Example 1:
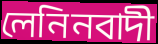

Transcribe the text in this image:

লেনিনবাদী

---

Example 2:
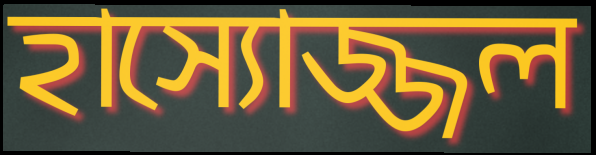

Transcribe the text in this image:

হাস্যোজ্জল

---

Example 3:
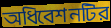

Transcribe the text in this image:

অধিবেশনটির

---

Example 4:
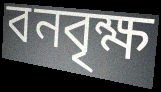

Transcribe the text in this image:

বনবৃক্ষ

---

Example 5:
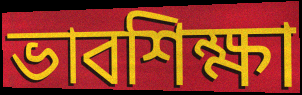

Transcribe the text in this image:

ভাবশিক্ষা